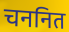
चननित